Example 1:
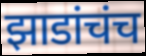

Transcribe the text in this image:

झाडांचंच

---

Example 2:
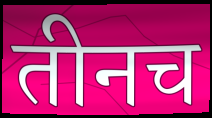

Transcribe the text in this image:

तीनच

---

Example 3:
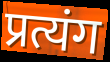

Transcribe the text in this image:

प्रत्यंग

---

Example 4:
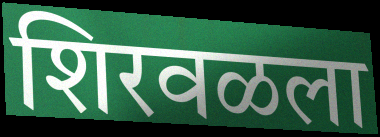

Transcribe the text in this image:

शिरवळला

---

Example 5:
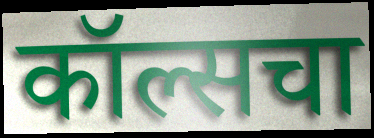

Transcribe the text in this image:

कॉल्सचा